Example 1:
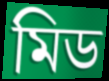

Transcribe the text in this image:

মিড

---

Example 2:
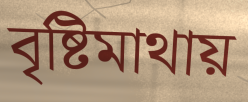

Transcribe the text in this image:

বৃষ্টিমাথায়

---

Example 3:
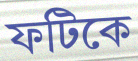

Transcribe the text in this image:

ফটিকে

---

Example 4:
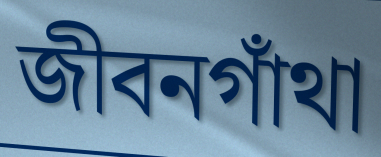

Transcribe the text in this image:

জীবনগাঁথা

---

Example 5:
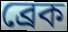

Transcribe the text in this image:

ব্রেক